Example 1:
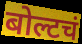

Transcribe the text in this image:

बोल्टचं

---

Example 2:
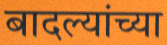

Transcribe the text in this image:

बादल्यांच्या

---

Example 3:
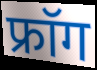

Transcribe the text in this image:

फ्रॉग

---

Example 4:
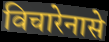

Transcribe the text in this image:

विचारेनासे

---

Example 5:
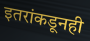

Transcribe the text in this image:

इतरांकडूनही